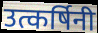
उत्कर्षिनी